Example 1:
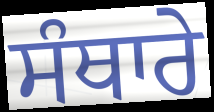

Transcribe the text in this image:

ਸੰਥਾਰੇ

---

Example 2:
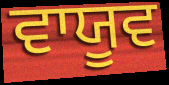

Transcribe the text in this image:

ਵਾਯੂਵ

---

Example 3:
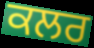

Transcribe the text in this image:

ਕਲਰ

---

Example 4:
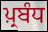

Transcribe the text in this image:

ਪ਼੍ਰਬੰਧ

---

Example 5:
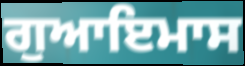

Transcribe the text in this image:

ਗੁਆਇਮਾਸ